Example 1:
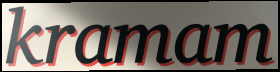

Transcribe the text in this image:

kramam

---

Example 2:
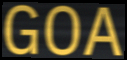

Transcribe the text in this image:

GOA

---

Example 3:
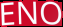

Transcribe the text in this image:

ENO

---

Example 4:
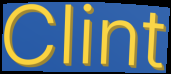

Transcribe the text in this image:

Clint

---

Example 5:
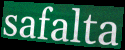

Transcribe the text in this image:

safalta